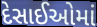
દેસાઈઓમાં